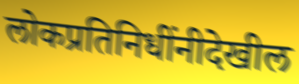
लोकप्रतिनिधींनीदेखील